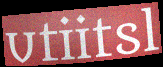
utiitsl